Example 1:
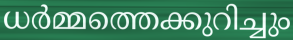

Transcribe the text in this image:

ധർമ്മത്തെക്കുറിച്ചും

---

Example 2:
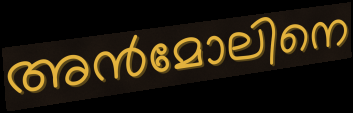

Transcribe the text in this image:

അൻമോലിനെ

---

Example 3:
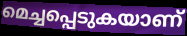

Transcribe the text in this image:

മെച്ചപ്പെടുകയാണ്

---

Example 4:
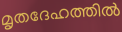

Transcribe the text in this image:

മൃതദേഹത്തിൽ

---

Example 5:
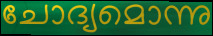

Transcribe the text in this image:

ചോദ്യമൊന്നു